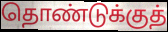
தொண்டுக்குத்